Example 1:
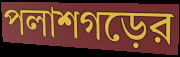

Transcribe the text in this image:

পলাশগড়ের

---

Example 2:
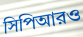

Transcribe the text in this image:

সিপিআরও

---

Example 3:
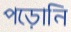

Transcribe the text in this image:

পড়োনি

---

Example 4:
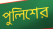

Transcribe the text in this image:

পুলিশের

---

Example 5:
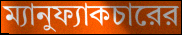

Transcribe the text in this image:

ম্যানুফ্যাকচারের